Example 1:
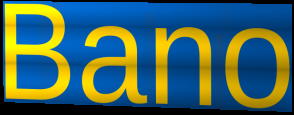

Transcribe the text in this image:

Bano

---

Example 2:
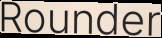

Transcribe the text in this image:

Rounder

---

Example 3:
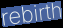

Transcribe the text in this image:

rebirth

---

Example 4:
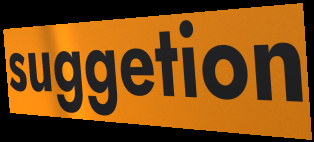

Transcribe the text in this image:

suggetion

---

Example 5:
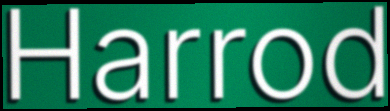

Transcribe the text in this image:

Harrod